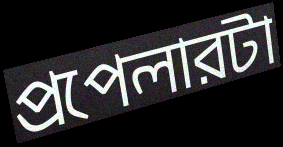
প্রপেলারটা